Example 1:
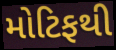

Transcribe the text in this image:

મોટિફથી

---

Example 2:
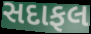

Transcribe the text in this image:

સદાફલ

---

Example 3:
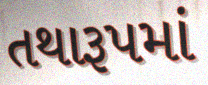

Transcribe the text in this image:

તથારૂપમાં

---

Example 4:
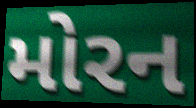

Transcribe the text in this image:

મોરન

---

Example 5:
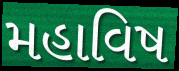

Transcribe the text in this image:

મહાવિષ